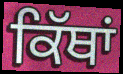
ਕਿੱਥਾਂ